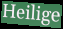
Heilige